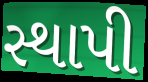
સ્થાપી